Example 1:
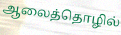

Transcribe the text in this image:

ஆலைத்தொழில்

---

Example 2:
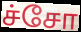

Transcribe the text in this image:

ச்சோ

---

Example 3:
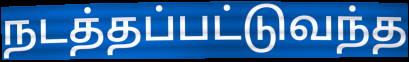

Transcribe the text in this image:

நடத்தப்பட்டுவந்த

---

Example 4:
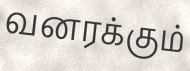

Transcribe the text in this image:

வனரக்கும்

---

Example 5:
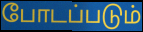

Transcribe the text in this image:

போடப்படும்